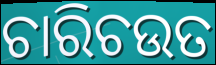
ଚାରିଚଉତ